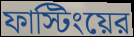
ফাস্টিংয়ের